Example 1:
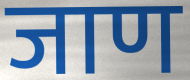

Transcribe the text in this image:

जाण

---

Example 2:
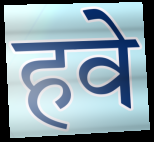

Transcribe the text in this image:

हवे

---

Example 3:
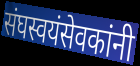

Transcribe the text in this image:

संघस्वयंसेवकांनी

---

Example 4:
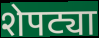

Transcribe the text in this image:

शेपट्या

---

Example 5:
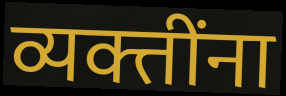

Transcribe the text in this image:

व्यक्तींना